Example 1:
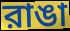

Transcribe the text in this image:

রাঙা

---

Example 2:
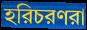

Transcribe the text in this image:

হরিচরণরা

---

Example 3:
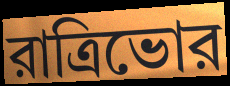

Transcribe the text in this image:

রাত্রিভোর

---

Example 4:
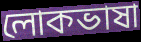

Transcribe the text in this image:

লোকভাষা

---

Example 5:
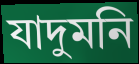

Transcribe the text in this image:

যাদুমনি